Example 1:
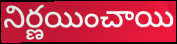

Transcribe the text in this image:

నిర్ణయించాయి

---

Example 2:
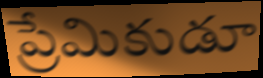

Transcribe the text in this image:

ప్రేమికుడూ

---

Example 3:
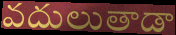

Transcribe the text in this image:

వదులుతాడా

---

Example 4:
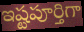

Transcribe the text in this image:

ఇష్టపూర్తిగా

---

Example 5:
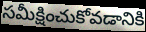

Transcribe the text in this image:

సమీక్షించుకోవడానికి